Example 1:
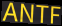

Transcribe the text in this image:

ANTF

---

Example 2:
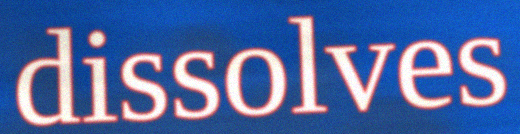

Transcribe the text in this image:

dissolves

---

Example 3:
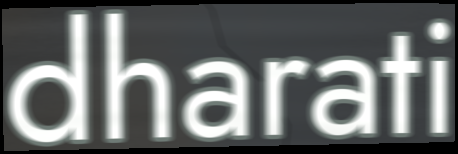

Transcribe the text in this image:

dharati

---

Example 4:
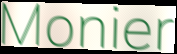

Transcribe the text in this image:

Monier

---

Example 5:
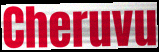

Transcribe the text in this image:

Cheruvu